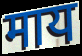
माय